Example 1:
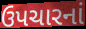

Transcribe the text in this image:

ઉપચારનાં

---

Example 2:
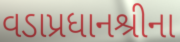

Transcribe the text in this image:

વડાપ્રધાનશ્રીના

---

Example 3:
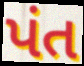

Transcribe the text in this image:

પંત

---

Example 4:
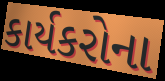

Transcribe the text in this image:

કાર્યકરોના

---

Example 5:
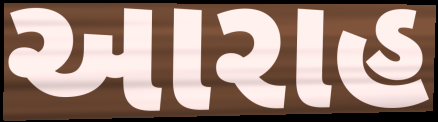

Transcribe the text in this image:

આરાહ